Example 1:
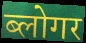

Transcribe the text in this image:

ब्लोगर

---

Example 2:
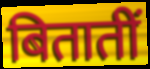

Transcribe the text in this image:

बितातीं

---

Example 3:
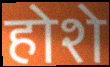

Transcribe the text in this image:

होशे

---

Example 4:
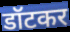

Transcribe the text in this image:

डॉटकर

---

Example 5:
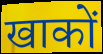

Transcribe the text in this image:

खाकों